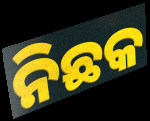
ନିଛକ